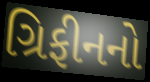
ગ્રિફીનનો